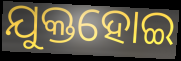
ଯୁକ୍ତହୋଇ